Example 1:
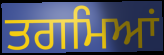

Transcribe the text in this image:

ਤਗਮਿਆਂ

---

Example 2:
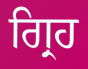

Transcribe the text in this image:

ਗ੍ਰਿਹ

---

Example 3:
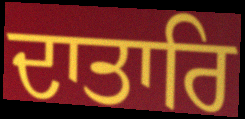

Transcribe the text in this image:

ਦਾਤਾਰਿ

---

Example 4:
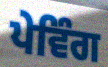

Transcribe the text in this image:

ਪੇਵਿੰਗ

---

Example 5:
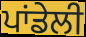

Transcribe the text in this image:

ਪਾਂਡੇਲੀ